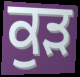
ਕੁੜ